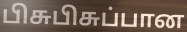
பிசுபிசுப்பான